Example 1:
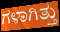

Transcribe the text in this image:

ಗಳಾಗಿತ್ತು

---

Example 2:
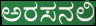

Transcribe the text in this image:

ಅರಸನಲಿ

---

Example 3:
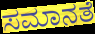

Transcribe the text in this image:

ಸಮಾನತೆ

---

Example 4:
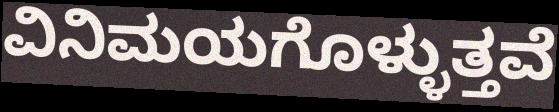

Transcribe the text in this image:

ವಿನಿಮಯಗೊಳ್ಳುತ್ತವೆ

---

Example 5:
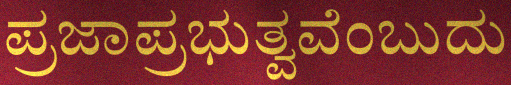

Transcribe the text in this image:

ಪ್ರಜಾಪ್ರಭುತ್ವವೆಂಬುದು